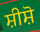
ਸ਼ੀਸ਼ੋ